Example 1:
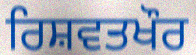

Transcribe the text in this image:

ਰਿਸ਼ਵਤਖੌਰ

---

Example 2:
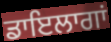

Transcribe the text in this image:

ਡਾਇਲਾਗਾਂ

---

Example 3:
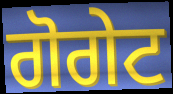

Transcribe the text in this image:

ਗੋਗੇਟ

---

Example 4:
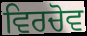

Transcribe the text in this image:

ਵਿਰਚੋਵ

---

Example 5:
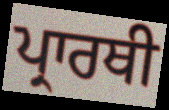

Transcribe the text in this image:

ਪ੍ਰਾਰਥੀ